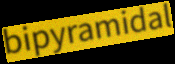
bipyramidal